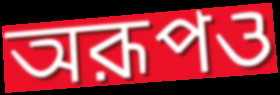
অরূপও